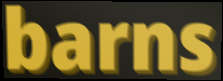
barns